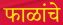
फाळांचे